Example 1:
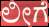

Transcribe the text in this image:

ಲೀಗೆ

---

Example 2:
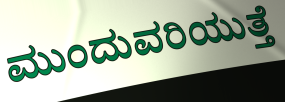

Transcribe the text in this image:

ಮುಂದುವರಿಯುತ್ತೆ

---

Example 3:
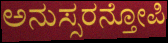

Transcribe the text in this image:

ಅನುಸ್ಸರನ್ತೋಪಿ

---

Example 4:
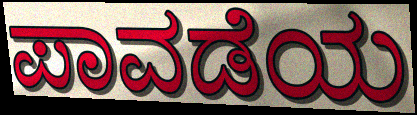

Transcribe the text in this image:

ಪಾವಡೆಯ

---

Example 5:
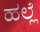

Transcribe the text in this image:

ಹಲ್ಲೆ